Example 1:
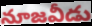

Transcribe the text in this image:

నూజవీడు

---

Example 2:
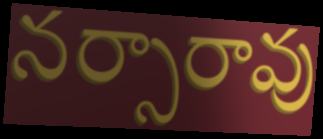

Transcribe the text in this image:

నర్సారావు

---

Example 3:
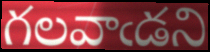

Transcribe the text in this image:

గలవాఁడని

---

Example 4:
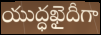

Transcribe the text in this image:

యుద్ధఖైదీగా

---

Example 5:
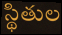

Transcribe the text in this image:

స్థితుల